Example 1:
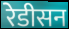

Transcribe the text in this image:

रेडीसन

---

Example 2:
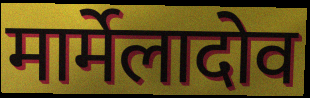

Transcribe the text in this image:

मार्मेलादोव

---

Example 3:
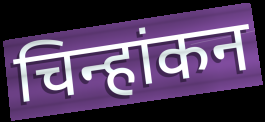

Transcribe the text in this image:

चिन्हांकन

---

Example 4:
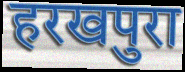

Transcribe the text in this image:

हरखपुरा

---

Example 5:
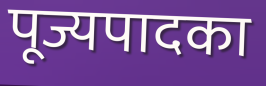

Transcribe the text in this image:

पूज्यपादका